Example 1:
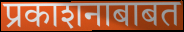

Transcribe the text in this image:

प्रकाशनाबाबत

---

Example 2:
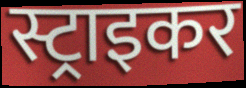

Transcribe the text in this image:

स्ट्राइकर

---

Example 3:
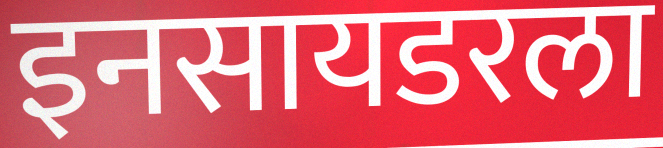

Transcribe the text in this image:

इनसायडरला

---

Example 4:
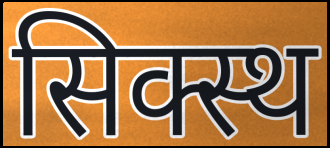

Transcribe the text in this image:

सिक्स्थ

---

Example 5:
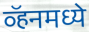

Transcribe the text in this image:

व्हॅनमध्ये